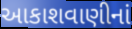
આકાશવાણીનાં